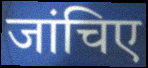
जांचिए